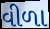
વીળા